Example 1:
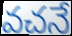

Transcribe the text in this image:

వచనే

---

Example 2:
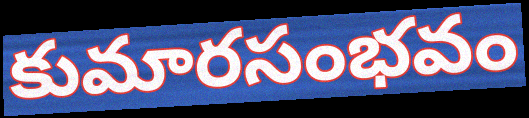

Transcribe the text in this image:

కుమారసంభవం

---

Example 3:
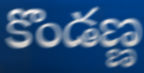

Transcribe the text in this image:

కొండణ్ణ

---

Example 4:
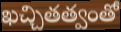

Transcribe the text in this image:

ఖచ్చితత్వంతో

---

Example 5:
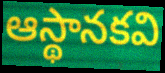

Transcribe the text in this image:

ఆస్థానకవి